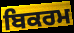
ਬਿਕਰਮ